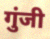
गुंजी